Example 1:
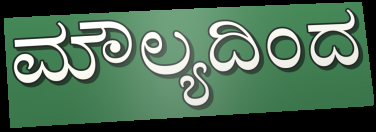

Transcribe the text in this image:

ಮೌಲ್ಯದಿಂದ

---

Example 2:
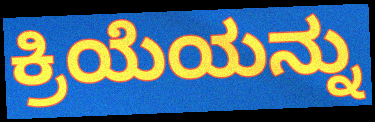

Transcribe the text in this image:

ಕ್ರಿಯೆಯನ್ನು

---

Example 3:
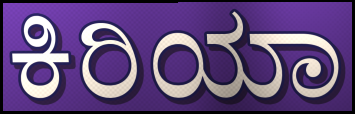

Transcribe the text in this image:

ಕಿರಿಯಾ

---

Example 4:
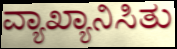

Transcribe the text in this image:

ವ್ಯಾಖ್ಯಾನಿಸಿತು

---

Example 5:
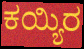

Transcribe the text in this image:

ಕಯ್ಯಿರ